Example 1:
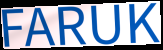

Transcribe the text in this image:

FARUK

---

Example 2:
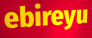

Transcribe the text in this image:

ebireyu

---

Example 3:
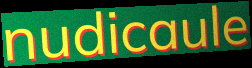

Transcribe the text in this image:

nudicaule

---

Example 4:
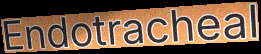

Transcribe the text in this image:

Endotracheal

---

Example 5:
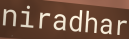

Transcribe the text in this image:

niradhar